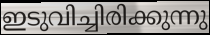
ഇടുവിച്ചിരിക്കുന്നു